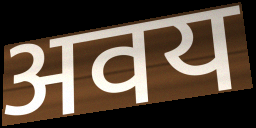
अवय